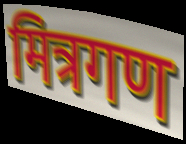
मित्रगण